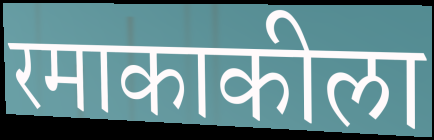
रमाकाकीला